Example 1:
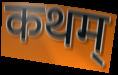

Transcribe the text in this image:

कथम्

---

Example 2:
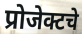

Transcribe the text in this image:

प्रोजेक्टचे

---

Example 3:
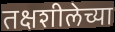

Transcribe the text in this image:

तक्षशीलेच्या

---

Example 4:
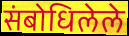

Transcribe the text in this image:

संबोधिलेले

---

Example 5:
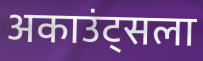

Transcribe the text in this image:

अकाउंट्सला